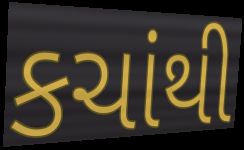
કચાંથી